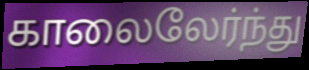
காலைலேர்ந்து